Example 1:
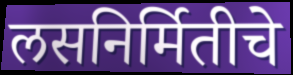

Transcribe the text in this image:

लसनिर्मितीचे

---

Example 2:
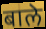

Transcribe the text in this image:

बाले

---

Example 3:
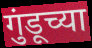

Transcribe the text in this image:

गुंडूच्या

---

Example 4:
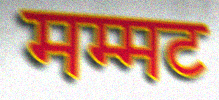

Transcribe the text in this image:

मम्मट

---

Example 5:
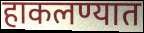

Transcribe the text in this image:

हाकलण्यात